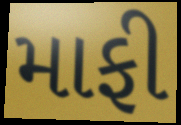
માફી